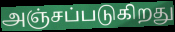
அஞ்சப்படுகிறது